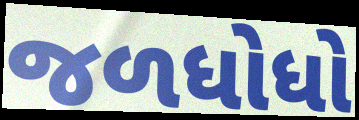
જળધોધો